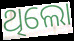
ଥିଲୋ